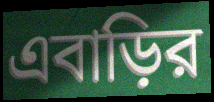
এবাড়ির